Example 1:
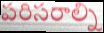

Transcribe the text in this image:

పరిసరాల్ని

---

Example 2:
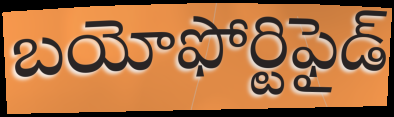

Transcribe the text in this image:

బయోఫోర్టిఫైడ్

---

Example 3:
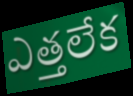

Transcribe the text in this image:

ఎత్తలేక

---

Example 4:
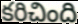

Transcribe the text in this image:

కరిచింది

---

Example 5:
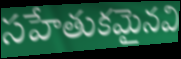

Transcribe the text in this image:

సహేతుకమైనవి